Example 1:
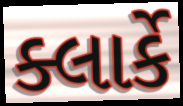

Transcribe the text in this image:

ક્લાર્કે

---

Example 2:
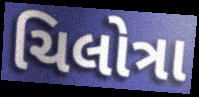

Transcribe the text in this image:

ચિલોત્રા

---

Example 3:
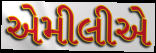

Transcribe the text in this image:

એમીલીએ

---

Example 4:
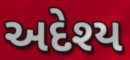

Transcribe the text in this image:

અદેશ્ય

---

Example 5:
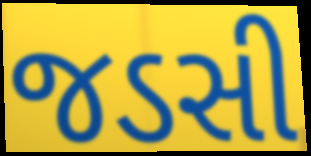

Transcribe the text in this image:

જડસી